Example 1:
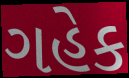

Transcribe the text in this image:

ગહેક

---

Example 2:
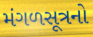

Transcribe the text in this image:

મંગળસૂત્રનો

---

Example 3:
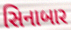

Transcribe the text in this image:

સિનાબાર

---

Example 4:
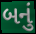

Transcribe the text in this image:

બનું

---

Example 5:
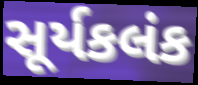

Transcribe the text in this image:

સૂર્યકલંક